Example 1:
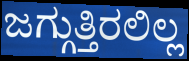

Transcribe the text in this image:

ಜಗ್ಗುತ್ತಿರಲಿಲ್ಲ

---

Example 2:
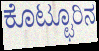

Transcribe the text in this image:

ಕೊಟ್ಟೂರಿನ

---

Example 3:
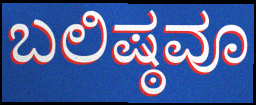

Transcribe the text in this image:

ಬಲಿಷ್ಠವೂ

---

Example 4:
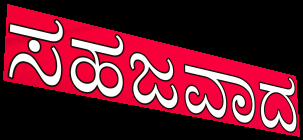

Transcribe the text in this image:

ಸಹಜವಾದ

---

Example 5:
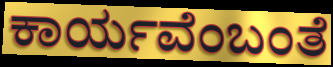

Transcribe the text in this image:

ಕಾರ್ಯವೆಂಬಂತೆ